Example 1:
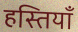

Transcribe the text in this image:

हस्तियॉं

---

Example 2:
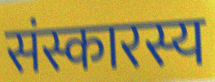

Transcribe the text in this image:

संस्कारस्य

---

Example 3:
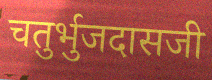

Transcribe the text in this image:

चतुर्भुजदासजी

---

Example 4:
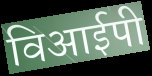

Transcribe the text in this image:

विआईपी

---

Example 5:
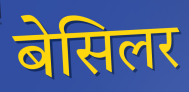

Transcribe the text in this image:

बेसिलर